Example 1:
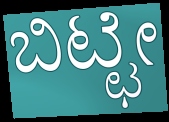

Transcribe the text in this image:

ಬಿಟ್ಟೇ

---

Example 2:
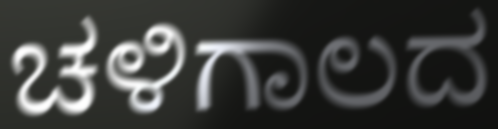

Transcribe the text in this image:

ಚಳಿಗಾಲದ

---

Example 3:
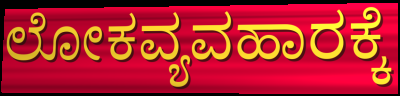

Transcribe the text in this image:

ಲೋಕವ್ಯವಹಾರಕ್ಕೆ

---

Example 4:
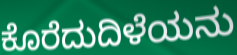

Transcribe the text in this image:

ಕೊರೆದುದಿಳೆಯನು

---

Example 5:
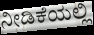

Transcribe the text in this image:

ನೀಡಿಕೆಯಲ್ಲಿ